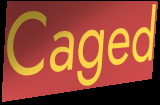
Caged